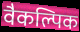
वैकल्पिक